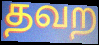
தவற